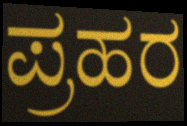
ಪ್ರಹರ